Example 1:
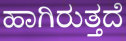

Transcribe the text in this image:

ಹಾಗಿರುತ್ತದೆ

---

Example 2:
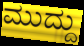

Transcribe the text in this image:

ಮುದ್ದು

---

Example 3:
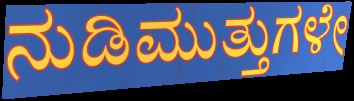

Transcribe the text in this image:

ನುಡಿಮುತ್ತುಗಳೇ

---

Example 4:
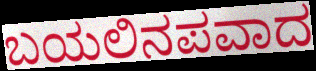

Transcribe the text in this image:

ಬಯಲಿನಪವಾದ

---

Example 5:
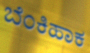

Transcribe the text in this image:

ಬೆಂಕಿಹಾಕ